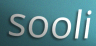
sooli